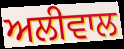
ਅਲੀਵਾਲ